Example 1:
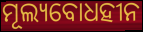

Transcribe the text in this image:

ମୂଲ୍ୟବୋଧହୀନ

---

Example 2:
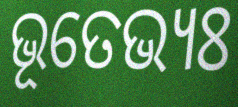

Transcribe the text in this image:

ଭୂତେଭ୍ୟଃ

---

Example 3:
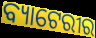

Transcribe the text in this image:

ବ୍ୟାଟେରୀର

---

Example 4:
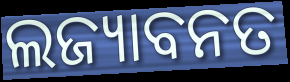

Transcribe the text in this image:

ଲଜ୍ୟାବନତ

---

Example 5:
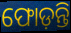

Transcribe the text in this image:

ଫୋଡ଼ନ୍ତି